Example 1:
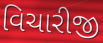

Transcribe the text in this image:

વિચારીજી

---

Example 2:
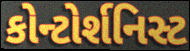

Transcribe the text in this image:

કોન્ટોર્શનિસ્ટ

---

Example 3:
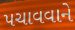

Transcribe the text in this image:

પચાવવાને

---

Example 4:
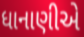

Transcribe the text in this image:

ધાનાણીએ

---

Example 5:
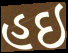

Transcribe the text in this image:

હઇ